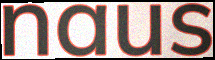
naus